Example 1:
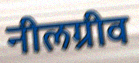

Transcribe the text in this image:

नीलग्रीव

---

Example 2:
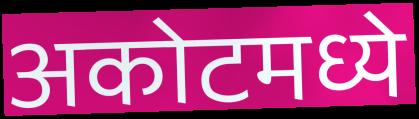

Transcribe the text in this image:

अकोटमध्ये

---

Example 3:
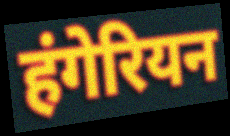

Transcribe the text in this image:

हंगेरियन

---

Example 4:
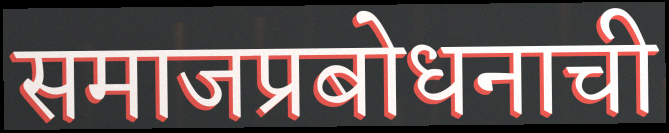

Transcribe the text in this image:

समाजप्रबोधनाची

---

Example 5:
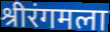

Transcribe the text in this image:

श्रीरंगमला